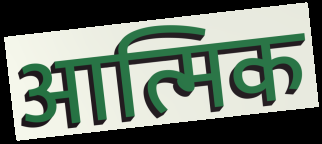
आत्मिक